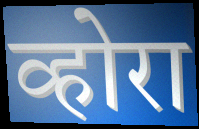
व्होरा